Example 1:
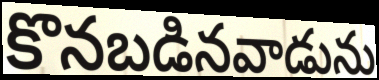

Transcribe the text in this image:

కొనబడినవాడును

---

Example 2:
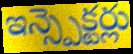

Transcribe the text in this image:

ఇన్స్పెక్టర్లు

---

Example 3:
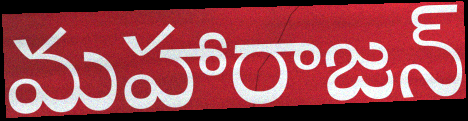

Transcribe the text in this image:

మహారాజన్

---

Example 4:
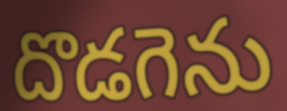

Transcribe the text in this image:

దొడగెను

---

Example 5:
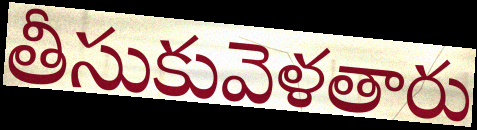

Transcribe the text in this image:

తీసుకువెళతారు